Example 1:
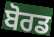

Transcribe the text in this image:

ਬੋਰਡ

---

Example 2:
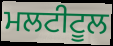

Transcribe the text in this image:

ਮਲਟੀਟੂਲ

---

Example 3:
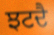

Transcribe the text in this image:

ਝਟਦੈ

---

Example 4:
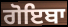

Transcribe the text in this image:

ਗੋਇਬਾ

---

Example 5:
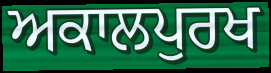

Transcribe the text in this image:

ਅਕਾਲਪੁਰਖ